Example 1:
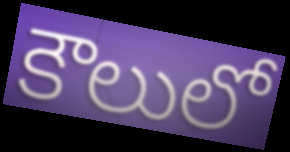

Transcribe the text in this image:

కౌలులో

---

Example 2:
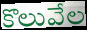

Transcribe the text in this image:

కొలువేల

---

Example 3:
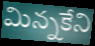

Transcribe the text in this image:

మిన్నకేని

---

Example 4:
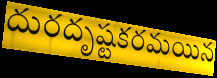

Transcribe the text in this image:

దురదృష్టకరమయిన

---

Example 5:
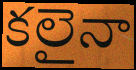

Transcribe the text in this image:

కలైనా